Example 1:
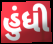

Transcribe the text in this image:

હુંધી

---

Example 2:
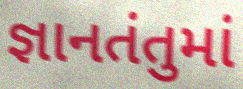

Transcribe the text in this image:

જ્ઞાનતંતુમાં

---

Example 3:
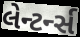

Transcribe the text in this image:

લેન્ટર્ન્સ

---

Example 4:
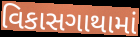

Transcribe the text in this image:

વિકાસગાથામાં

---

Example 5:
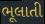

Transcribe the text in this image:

ભૂલાતી